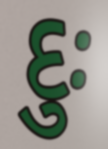
દુઃ